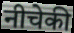
नीचेकी